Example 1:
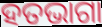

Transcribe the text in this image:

ହତଭାଗା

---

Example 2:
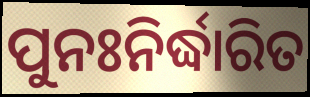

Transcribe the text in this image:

ପୁନଃନିର୍ଦ୍ଧାରିତ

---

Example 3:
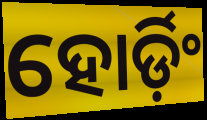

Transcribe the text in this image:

ହୋର୍ଡ଼ିଂ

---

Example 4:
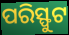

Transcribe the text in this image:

ପରିସ୍ଫୁଟ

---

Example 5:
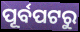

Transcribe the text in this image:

ପୂର୍ବପଟରୁ